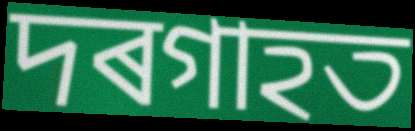
দৰগাহত